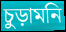
চুড়ামনি